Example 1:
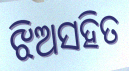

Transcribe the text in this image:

ଝିଅସହିତ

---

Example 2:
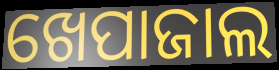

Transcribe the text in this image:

ଖେପାଜାଲ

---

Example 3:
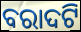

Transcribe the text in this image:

ବରାଦଟି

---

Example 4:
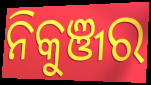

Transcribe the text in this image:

ନିକୁଞ୍ଜର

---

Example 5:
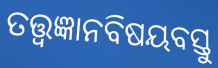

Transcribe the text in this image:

ତତ୍ତ୍ୱଜ୍ଞାନବିଷୟବସ୍ତୁ